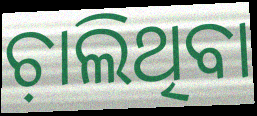
ଚ଼ାଲିଥିବା